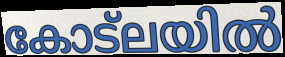
കോട്ലയിൽ